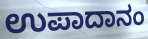
ಉಪಾದಾನಂ